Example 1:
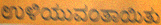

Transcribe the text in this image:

ಉಳಿಯುವಂತಾಯಿತು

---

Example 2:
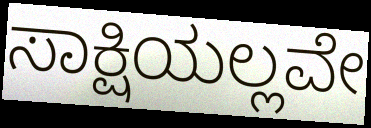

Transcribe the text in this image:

ಸಾಕ್ಷಿಯಲ್ಲವೇ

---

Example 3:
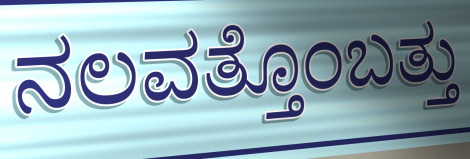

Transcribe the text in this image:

ನಲವತ್ತೊಂಬತ್ತು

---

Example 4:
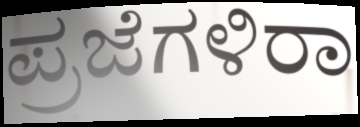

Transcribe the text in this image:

ಪ್ರಜೆಗಳಿರಾ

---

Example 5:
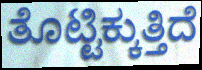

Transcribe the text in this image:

ತೊಟ್ಟಿಕ್ಕುತ್ತಿದೆ